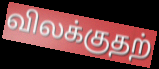
விலக்குதற்